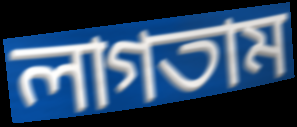
লাগতাম